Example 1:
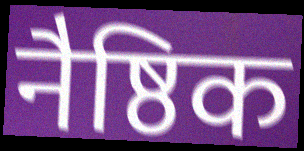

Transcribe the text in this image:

नैष्ठिक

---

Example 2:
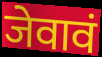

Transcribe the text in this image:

जेवावं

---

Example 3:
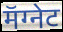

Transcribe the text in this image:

मॅग्नेट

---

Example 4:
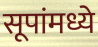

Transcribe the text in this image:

सूपांमध्ये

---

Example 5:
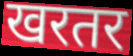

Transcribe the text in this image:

खरतर